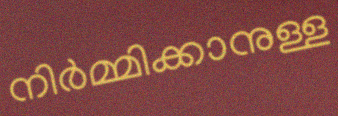
നിർമ്മിക്കാനുള്ള